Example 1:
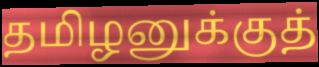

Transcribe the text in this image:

தமிழனுக்குத்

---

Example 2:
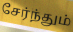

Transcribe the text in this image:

சேர்ந்தும்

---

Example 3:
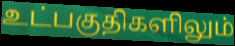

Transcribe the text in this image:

உட்பகுதிகளிலும்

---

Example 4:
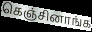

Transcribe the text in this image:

கெஞ்சினாங்க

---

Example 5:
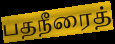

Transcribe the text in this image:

பதநீரைத்